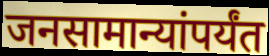
जनसामान्यांपर्यंत